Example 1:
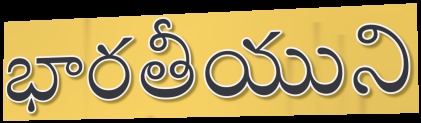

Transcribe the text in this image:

భారతీయుని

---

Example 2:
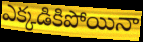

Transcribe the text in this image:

ఎక్కడికిపోయినా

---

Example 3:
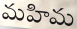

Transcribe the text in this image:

మహిమ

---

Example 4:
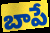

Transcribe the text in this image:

బాపే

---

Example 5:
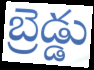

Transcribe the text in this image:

బ్రెడ్డు